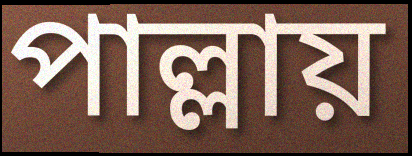
পাল্লায়